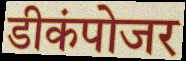
डीकंपोजर